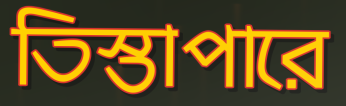
তিস্তাপারে